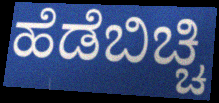
ಹೆಡೆಬಿಚ್ಚಿ